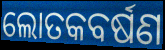
ଲୋତକବର୍ଷଣ